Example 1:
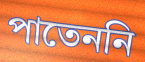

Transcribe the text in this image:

পাতেননি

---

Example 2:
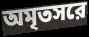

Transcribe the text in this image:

অমৃতসরে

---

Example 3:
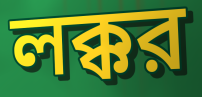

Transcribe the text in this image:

লক্কর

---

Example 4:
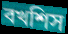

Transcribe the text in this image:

বখশিস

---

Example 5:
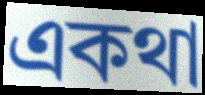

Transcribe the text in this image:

একথা